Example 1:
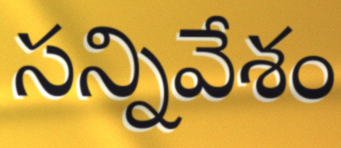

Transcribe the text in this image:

సన్నివేశం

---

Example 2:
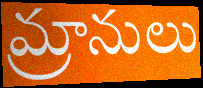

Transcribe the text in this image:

మ్రానులు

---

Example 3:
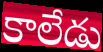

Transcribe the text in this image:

కాలేడు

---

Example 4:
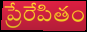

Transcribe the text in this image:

ప్రేరేపితం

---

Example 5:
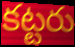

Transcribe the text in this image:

కట్టరు